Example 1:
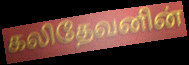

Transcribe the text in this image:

கலிதேவனின்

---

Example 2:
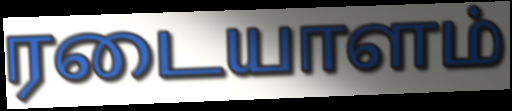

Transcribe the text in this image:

ரடையாளம்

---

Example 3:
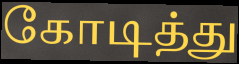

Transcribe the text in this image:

கோடித்து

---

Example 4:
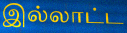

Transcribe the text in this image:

இல்லாட்ட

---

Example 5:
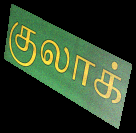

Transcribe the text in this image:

குலாக்